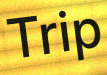
Trip